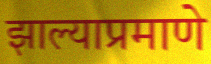
झाल्याप्रमाणे